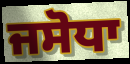
ਜਸੋਧਾ